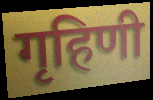
गृहिणी